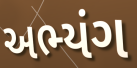
અભ્યંગ